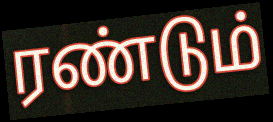
ரண்டும்